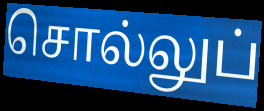
சொல்லுப்